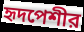
হৃদপেশীর